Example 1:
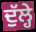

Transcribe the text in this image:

ਦੁੱਲ੍ਹੇ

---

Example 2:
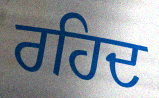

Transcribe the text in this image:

ਰਹਿਦ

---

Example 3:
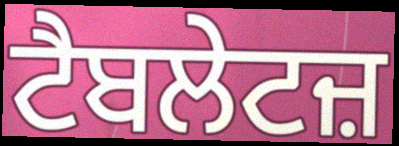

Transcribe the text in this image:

ਟੈਬਲੇਟਜ਼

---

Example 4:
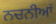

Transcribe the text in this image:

ਨਚਨੀਆਂ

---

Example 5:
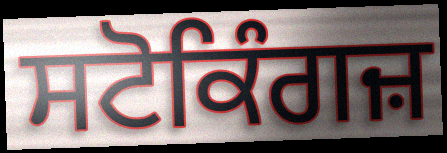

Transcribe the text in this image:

ਸਟੋਕਿੰਗਜ਼